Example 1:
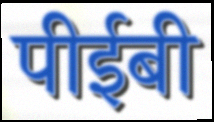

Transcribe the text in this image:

पीईबी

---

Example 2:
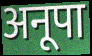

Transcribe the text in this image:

अनूपा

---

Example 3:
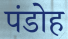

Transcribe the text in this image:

पंडोह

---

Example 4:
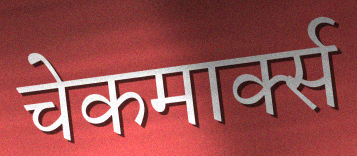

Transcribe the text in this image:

चेकमार्क्स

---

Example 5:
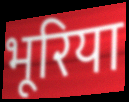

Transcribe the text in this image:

भूरिया